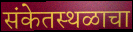
संकेतस्थळाचा